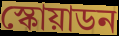
স্কোয়াডন